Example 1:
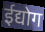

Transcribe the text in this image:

ईद्योग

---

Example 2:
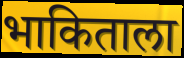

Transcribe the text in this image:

भाकिताला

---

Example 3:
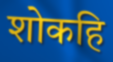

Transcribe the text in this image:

शोकहि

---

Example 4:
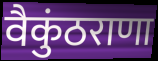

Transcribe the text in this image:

वैकुंठराणा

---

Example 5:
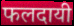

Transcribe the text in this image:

फलदायी